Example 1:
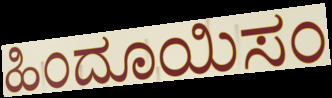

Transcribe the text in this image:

ಹಿಂದೂಯಿಸಂ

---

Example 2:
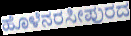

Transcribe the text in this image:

ಹೊಳೆನರಸೀಪುರದ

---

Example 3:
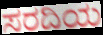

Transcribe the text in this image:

ಸರದಿಯ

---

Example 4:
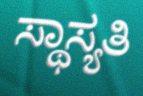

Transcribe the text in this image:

ಸ್ಥಾಸ್ಯತಿ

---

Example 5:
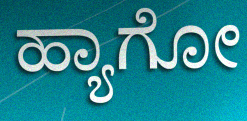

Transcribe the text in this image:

ಹ್ಯಾಗೋ